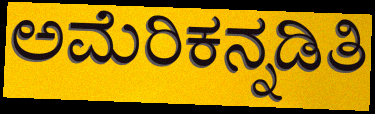
ಅಮೆರಿಕನ್ನಡಿತಿ